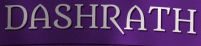
DASHRATH